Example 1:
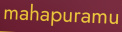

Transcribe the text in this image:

mahapuramu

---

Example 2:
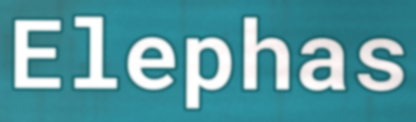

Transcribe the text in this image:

Elephas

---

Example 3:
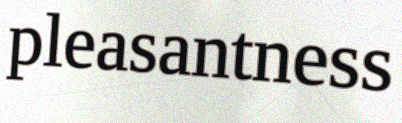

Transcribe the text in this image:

pleasantness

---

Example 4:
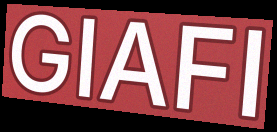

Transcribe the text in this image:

GIAFI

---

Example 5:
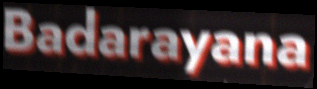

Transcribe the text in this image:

Badarayana